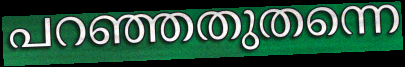
പറഞ്ഞതുതന്നെ